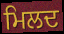
ਮਿਲਦ